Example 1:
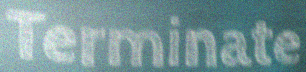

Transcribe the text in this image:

Terminate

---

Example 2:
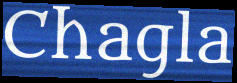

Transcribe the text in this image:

Chagla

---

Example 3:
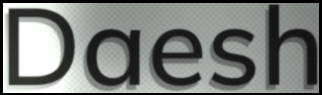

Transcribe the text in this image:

Daesh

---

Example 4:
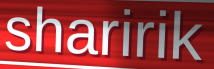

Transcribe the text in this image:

sharirik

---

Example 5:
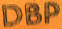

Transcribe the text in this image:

DBP